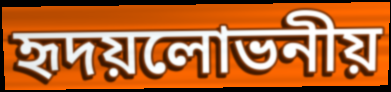
হৃদয়লোভনীয়